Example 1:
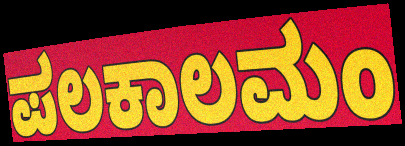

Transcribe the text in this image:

ಪಲಕಾಲಮಂ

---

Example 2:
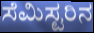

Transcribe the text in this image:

ಸೆಮಿಸ್ಟರಿನ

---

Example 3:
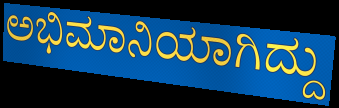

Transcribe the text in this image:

ಅಭಿಮಾನಿಯಾಗಿದ್ದು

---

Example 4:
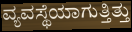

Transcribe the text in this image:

ವ್ಯವಸ್ಥೆಯಾಗುತ್ತಿತ್ತು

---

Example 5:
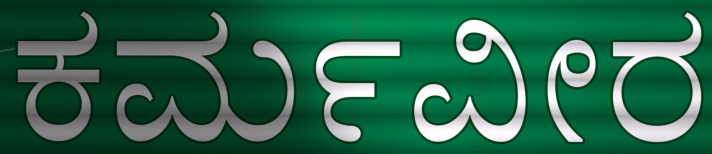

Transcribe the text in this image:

ಕರ್ಮವೀರ